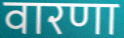
वारणा